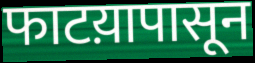
फाटय़ापासून